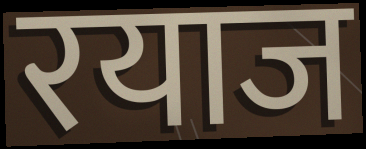
रयाज